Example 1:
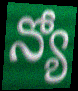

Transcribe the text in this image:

న్యో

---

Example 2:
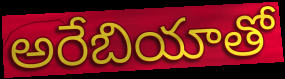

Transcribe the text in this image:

అరేబియాతో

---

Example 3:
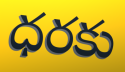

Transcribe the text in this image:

ధరకు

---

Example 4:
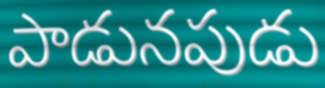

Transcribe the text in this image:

పాడునపుడు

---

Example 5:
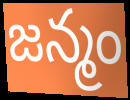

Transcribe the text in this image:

జన్మం